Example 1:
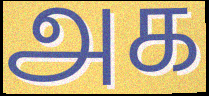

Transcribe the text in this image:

அக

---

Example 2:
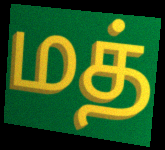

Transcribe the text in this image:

மத்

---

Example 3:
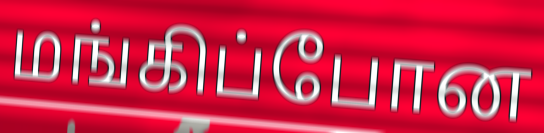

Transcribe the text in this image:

மங்கிப்போன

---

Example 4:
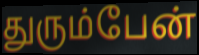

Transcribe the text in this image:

துரும்பேன்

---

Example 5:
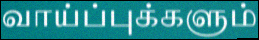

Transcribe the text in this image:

வாய்ப்புக்களும்